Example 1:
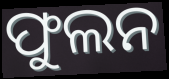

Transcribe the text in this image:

ଫୁଲନ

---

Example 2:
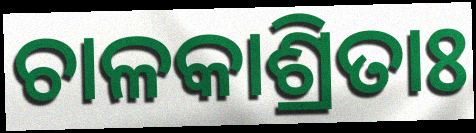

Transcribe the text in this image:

ଚାଳକାଶ୍ରିତାଃ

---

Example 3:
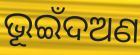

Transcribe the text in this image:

ଭୂଇଁଦଅଣ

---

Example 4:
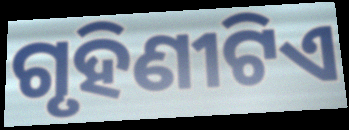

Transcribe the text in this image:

ଗୃହିଣୀଟିଏ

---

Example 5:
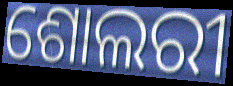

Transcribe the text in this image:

ଶୋଲରୀ